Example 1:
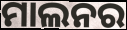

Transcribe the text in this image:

ମାଲନର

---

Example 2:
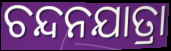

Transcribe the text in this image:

ଚନ୍ଦନଯାତ୍ରା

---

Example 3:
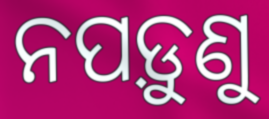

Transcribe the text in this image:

ନପଡ଼ୁଣୁ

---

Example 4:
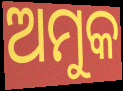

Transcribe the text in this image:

ଅମୁକ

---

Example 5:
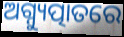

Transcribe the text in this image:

ଅଗ୍ନ୍ୟୁତ୍ପାତରେ